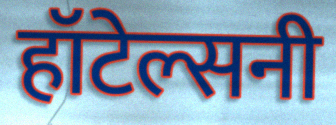
हॉटेल्सनी